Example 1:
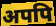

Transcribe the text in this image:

अपपि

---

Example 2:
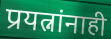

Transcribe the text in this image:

प्रयत्नांनाही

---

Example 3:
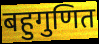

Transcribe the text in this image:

बहुगुणित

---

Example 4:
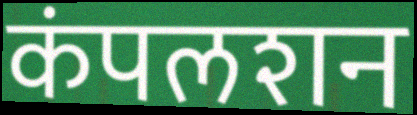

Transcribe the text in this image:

कंपलशन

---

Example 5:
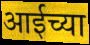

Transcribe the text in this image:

आईच्या